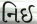
નિઈ